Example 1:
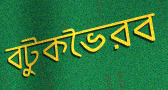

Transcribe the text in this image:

বটুকভৈরব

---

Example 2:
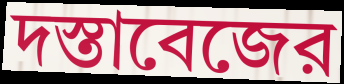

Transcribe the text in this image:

দস্তাবেজের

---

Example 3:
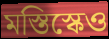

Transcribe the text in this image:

মস্তিস্কেও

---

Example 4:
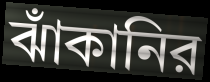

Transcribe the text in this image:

ঝাঁকানির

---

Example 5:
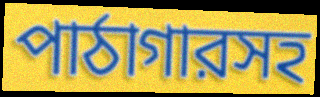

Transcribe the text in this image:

পাঠাগারসহ